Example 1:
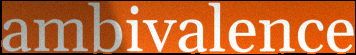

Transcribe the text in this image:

ambivalence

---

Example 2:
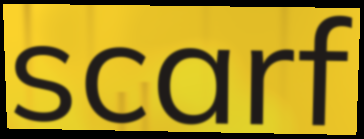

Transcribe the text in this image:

scarf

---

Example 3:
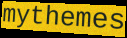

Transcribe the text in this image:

mythemes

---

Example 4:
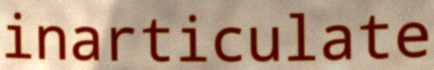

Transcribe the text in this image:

inarticulate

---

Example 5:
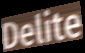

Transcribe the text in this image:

Delite